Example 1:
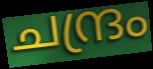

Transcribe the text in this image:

ചന്ദ്രം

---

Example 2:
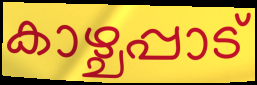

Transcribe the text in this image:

കാഴ്ചപ്പാട്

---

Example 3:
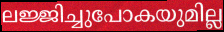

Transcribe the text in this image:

ലജ്ജിച്ചുപോകയുമില്ല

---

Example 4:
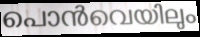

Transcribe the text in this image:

പൊൻവെയിലും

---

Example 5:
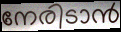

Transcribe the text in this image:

നേരിടാൻ